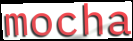
mocha